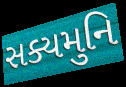
સક્યમુનિ